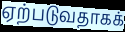
ஏற்படுவதாகக்